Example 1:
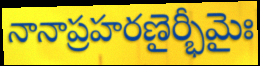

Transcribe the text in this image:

నానాప్రహరణైర్భీమైః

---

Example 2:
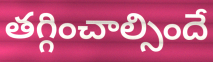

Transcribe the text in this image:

తగ్గించాల్సిందే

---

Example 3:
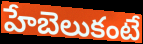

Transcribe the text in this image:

హేబెలుకంటే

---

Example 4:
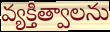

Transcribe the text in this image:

వ్యక్తిత్వాలను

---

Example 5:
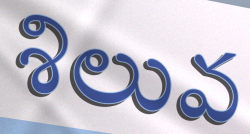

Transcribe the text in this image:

శిలువ